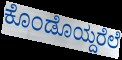
ಕೊಂಡೊಯ್ದರೆಲೆ